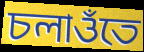
চলাওঁতে